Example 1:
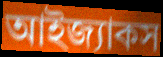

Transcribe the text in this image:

আইজ্যাকস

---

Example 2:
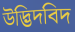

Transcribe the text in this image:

উদ্ভিদবিদ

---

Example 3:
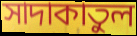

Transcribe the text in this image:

সাদাকাতুল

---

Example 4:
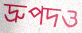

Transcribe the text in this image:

দ্রুপদও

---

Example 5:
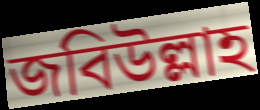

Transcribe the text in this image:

জবিউল্লাহ